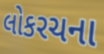
લોકરચના